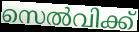
സെൽവിക്ക്